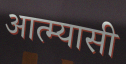
आत्म्यासी